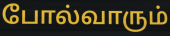
போல்வாரும்